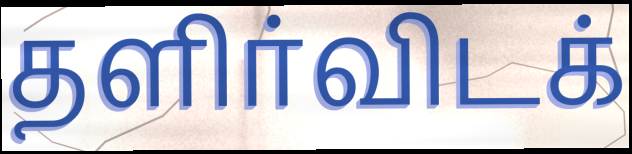
தளிர்விடக்